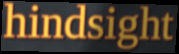
hindsight